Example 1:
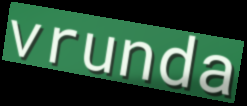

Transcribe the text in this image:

vrunda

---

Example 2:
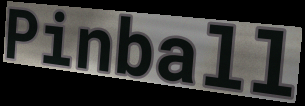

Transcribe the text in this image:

Pinball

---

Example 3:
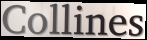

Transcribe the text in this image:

Collines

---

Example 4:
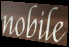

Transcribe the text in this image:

nobile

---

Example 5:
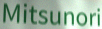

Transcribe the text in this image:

Mitsunori